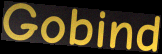
Gobind